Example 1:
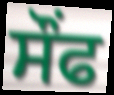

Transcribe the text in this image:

ਸੌਂਫ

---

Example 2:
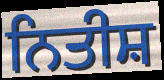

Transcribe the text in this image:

ਨਿਤੀਸ਼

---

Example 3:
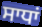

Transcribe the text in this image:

ਸਾਧਾਂ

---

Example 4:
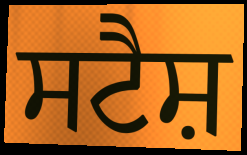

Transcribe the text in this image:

ਸਟੈਸ਼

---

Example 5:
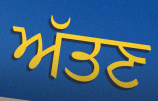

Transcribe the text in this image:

ਅੱਤਣ